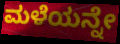
ಮಳೆಯನ್ನೇ